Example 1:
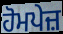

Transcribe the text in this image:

ਹੋਮਪੇਜ਼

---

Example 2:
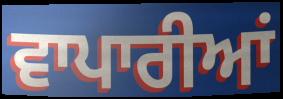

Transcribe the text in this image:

ਵਾਪਾਰੀਆਂ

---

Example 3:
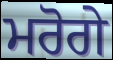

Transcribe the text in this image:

ਮਰੋਗੇ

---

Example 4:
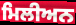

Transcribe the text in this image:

ਮਿਲੀਅਨ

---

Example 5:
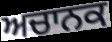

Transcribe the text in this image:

ਅਚਾਨਕ